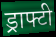
ड्राफ्टी